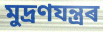
মুদ্ৰণযন্ত্ৰৰ